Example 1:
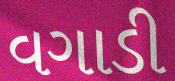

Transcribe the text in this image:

વગાડી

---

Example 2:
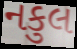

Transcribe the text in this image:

નકુલ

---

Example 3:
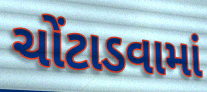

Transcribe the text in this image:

ચોંટાડવામાં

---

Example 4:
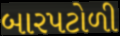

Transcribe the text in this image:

બારપટોળી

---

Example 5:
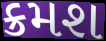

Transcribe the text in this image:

ક્રમશ